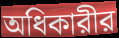
অধিকারীর